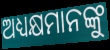
ଅଧ୍ୟକ୍ଷମାନଙ୍କୁ